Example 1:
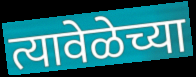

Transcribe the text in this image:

त्यावेळेच्या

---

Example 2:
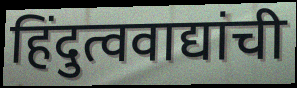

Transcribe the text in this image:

हिंदुत्ववाद्यांची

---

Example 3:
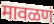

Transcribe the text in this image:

मावळणं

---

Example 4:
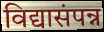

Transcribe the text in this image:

विद्यासंपन्न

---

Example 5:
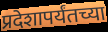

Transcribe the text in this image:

प्रदेशापर्यंतच्या